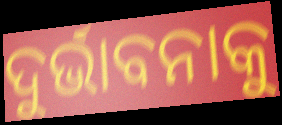
ଦୁର୍ଭାବନାକୁ